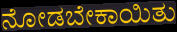
ನೋಡಬೇಕಾಯಿತು